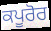
ਕਪੂਰੋਰ